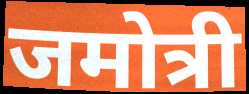
जमोत्री